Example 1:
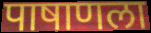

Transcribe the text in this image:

पाषाणला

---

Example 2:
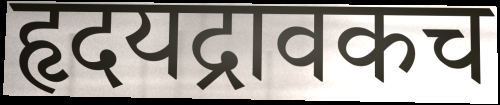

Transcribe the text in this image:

हृदयद्रावकच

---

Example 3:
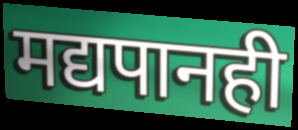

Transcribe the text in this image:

मद्यपानही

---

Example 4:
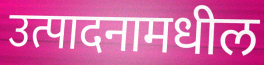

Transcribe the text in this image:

उत्पादनामधील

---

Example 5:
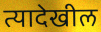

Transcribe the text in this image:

त्यादेखील